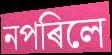
নপৰিলে